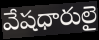
వేషధారులై